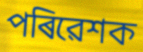
পৰিৱেশক